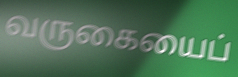
வருகையைப்